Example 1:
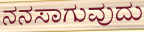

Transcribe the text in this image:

ನನಸಾಗುವುದು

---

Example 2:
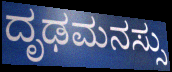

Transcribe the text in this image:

ದೃಢಮನಸ್ಸು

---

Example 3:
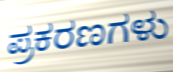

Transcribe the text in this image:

ಪ್ರಕರಣಗಳು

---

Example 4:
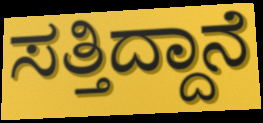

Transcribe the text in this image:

ಸತ್ತಿದ್ದಾನೆ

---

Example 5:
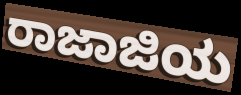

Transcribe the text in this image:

ರಾಜಾಜಿಯ